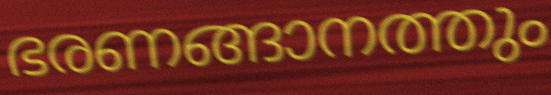
ഭരണങ്ങാനത്തും